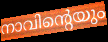
നാവിന്റെയും